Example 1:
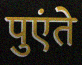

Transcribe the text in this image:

पुएंते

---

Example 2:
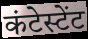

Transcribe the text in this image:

कंटेस्‍टेंट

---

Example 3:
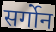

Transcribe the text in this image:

सर्गोन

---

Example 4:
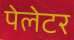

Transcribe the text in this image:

पेलेटर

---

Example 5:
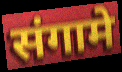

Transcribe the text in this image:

संगामे